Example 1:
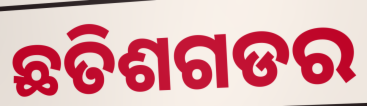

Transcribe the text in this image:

ଛତିଶଗଡର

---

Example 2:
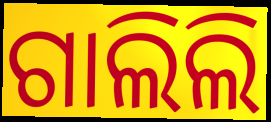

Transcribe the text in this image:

ଗାଲିଲି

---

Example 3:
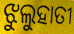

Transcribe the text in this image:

ଝୁଲୁହାତୀ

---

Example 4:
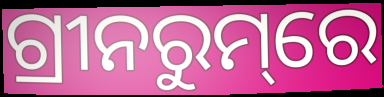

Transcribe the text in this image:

ଗ୍ରୀନରୁମ୍‌ରେ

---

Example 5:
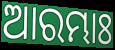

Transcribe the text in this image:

ଆରମ୍ଭାଃ